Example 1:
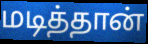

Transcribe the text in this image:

மடித்தான்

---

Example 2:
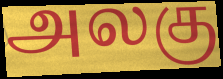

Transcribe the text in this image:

அலகு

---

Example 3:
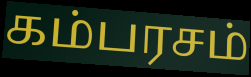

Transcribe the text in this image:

கம்பரசம்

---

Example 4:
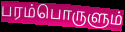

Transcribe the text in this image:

பரம்பொருளும்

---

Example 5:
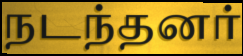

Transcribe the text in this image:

நடந்தனர்